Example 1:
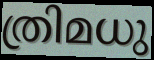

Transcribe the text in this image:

ത്രിമധു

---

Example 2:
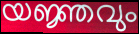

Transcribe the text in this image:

യജ്ഞവും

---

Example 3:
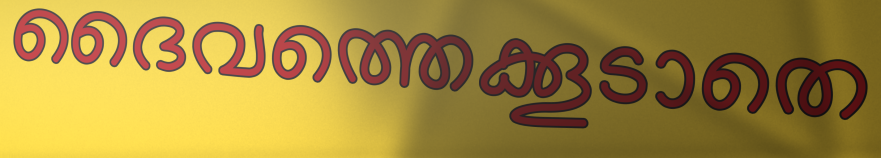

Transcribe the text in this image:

ദൈവത്തെക്കൂടാതെ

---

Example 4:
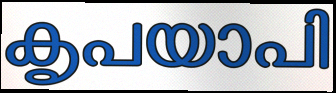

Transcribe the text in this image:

കൃപയാപി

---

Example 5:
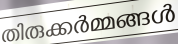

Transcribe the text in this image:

തിരുക്കർമ്മങ്ങൾ